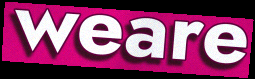
weare